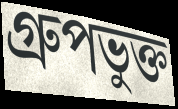
গ্রুপভুক্ত